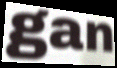
gan